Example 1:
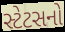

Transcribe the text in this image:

સ્ટેટસનો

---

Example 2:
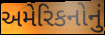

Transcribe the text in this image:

અમેરિકનોનું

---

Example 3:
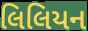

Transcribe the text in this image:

લિલિયન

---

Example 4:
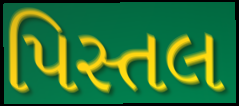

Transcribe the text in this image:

પિસ્તલ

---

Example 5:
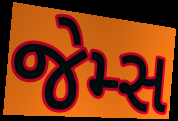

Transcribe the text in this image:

જેમ્સ